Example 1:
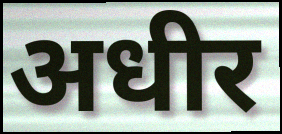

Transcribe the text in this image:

अधीर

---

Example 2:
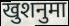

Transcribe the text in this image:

खुशनुमा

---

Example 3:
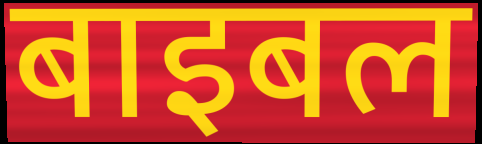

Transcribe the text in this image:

बाइबल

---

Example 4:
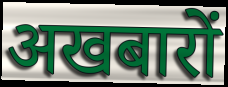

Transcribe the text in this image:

अखबारों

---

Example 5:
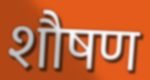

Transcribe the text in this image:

शौषण